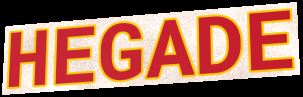
HEGADE